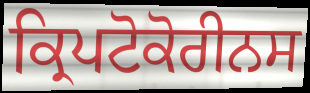
ਕ੍ਰਿਪਟੋਕੋਰੀਨਸ